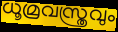
ധൂമ്രവസ്ത്രവും